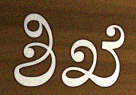
ಶಿಖೆ